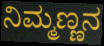
ನಿಮ್ಮಣ್ಣನ